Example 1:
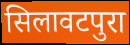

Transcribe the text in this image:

सिलावटपुरा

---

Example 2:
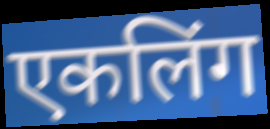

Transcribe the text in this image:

एकलिंग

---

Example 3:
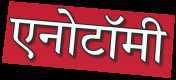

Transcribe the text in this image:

एनोटॉमी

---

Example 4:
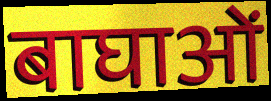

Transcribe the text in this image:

बाघाओं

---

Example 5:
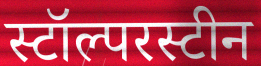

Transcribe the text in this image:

स्टॉल्परस्टीन